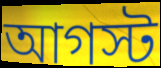
আগস্ট